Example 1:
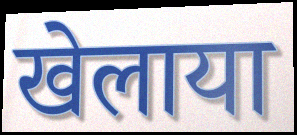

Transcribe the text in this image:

खेलाया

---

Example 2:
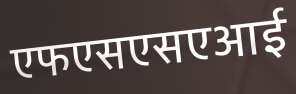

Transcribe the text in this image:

एफएसएसएआई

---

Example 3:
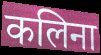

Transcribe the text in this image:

कलिना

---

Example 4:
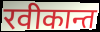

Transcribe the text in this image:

रवीकान्त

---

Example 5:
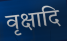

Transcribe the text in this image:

वृक्षादि